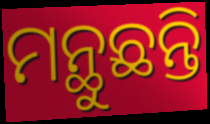
ମନ୍ଥୁଛନ୍ତି